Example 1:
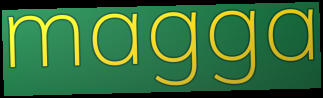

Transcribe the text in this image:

magga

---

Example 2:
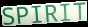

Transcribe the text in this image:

SPIRIT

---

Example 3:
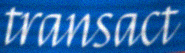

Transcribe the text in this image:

transact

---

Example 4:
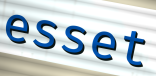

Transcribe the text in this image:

esset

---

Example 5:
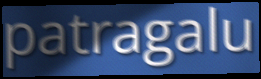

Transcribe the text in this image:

patragalu